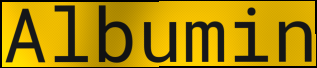
Albumin